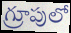
గ్రూపులో